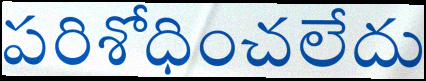
పరిశోధించలేదు